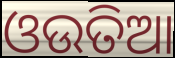
ଓଉତିଆ